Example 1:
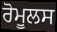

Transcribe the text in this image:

ਰੋਮੂਲਸ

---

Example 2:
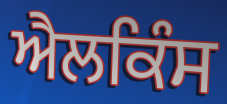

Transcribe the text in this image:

ਐਲਕਿੰਸ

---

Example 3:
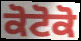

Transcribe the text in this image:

ਕੋਟੋਕੋ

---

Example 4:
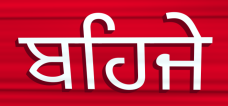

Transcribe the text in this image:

ਬਹਿਜੇ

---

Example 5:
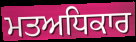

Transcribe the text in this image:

ਮਤਅਧਿਕਾਰ